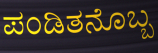
ಪಂಡಿತನೊಬ್ಬ